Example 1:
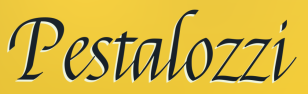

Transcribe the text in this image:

Pestalozzi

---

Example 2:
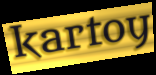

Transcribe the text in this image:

kartoy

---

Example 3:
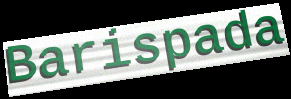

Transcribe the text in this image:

Barispada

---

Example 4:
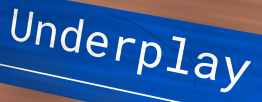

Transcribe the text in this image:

Underplay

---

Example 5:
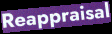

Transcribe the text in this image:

Reappraisal